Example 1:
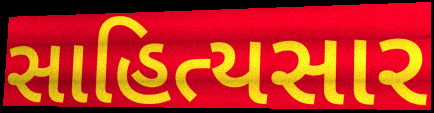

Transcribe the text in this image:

સાહિત્યસાર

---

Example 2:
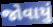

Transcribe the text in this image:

જોવાયું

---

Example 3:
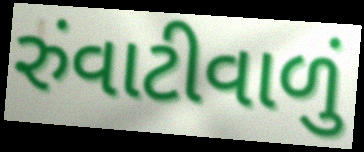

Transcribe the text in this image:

રુંવાટીવાળું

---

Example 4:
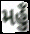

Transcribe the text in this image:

મહુઁ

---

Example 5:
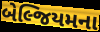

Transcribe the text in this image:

બેલ્જિયમના